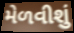
મેળવીશું